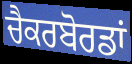
ਚੈਕਰਬੋਰਡਾਂ